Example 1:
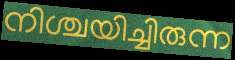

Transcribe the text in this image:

നിശ്ചയിച്ചിരുന്ന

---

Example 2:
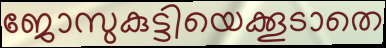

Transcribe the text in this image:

ജോസുകുട്ടിയെക്കൂടാതെ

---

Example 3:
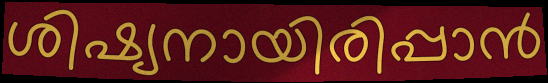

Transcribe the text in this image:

ശിഷ്യനായിരിപ്പാൻ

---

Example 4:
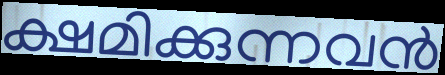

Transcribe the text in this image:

ക്ഷമിക്കുന്നവൻ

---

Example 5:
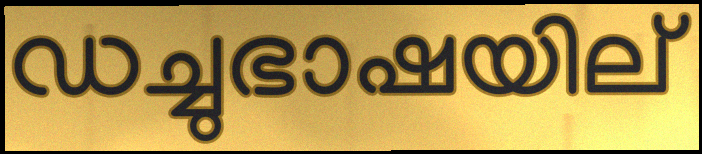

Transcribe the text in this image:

ഡച്ചുഭാഷയില്